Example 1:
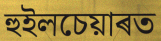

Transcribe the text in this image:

হুইলচেয়াৰত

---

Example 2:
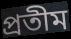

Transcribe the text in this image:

প্ৰতীম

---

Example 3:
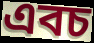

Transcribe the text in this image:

এবচ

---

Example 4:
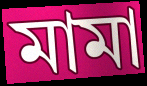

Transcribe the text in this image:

মামা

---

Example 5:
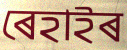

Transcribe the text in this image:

ৰেহাইৰ